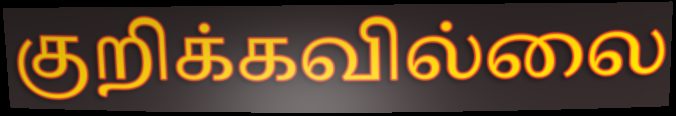
குறிக்கவில்லை